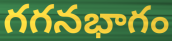
గగనభాగం